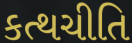
કત્થચીતિ